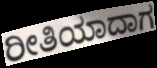
ರೀತಿಯಾದಾಗ